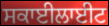
ਸਕਾਈਲਾਈਟ